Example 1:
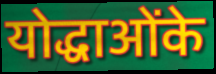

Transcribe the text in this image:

योद्धाओंके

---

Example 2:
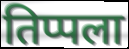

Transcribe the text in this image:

तिप्पला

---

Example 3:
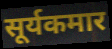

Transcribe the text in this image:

सूर्यकमार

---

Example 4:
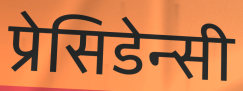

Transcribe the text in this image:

प्रेसिडेन्सी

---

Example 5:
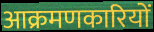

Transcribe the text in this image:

आक्रमणकारियों